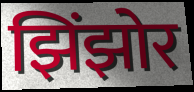
झिंझोर